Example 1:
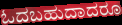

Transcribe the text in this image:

ಓದಬಹುದಾದರೂ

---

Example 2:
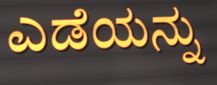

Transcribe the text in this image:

ಎಡೆಯನ್ನು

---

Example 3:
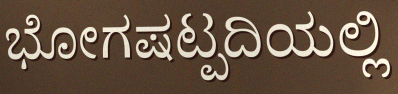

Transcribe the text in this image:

ಭೋಗಷಟ್ಪದಿಯಲ್ಲಿ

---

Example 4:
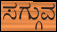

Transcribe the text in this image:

ಸಗ್ಗುವ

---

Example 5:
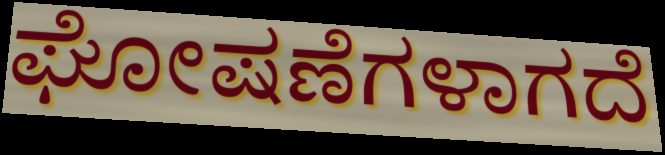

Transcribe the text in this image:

ಘೋಷಣೆಗಳಾಗದೆ